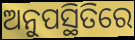
ଅନୁପସ୍ଥିତିରେ